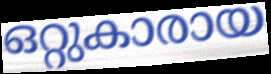
ഒറ്റുകാരായ